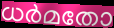
ധർമതോ